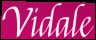
Vidale